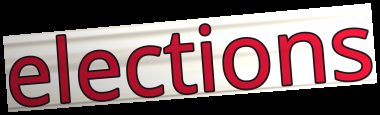
elections